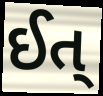
ઈત્